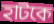
হাটকে